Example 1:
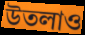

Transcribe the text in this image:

উতলাও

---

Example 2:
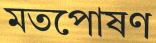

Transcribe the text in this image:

মতপোষণ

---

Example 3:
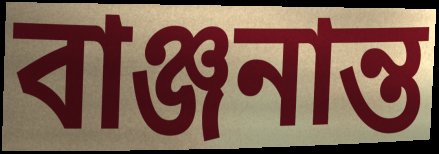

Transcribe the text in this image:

বাঞ্জনান্ত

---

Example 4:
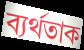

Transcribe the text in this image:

ব্যৰ্থতাক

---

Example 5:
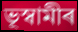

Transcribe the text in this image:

ভূস্বামীৰ